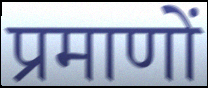
प्रमाणों